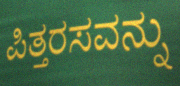
ಪಿತ್ತರಸವನ್ನು